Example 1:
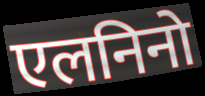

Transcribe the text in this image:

एलनिनो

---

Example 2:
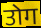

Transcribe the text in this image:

उोग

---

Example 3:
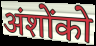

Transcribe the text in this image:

अंशोंको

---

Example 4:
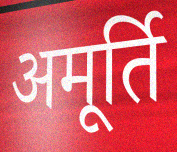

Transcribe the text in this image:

अमूर्ति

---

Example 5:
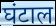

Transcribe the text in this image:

घंटाल